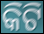
କିଟି